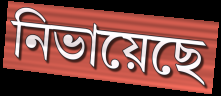
নিভায়েছে